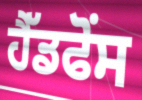
ਹੈੱਡਫੋਂਸ